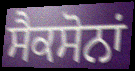
ਸੈਕਸੋਨਾਂ